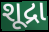
શૂદ્રા